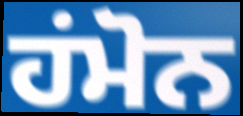
ਹਂਮੋਨ